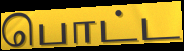
பொட்ட